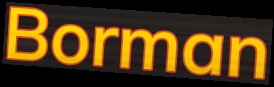
Borman